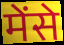
मेंसे